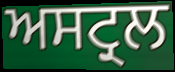
ਅਸਟ੍ਰਲ